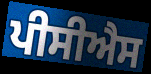
ਪੀਸੀਐਸ